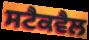
ਸਟੈਕਵੈਲ